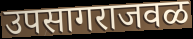
उपसागराजवळ